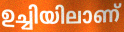
ഉച്ചിയിലാണ്